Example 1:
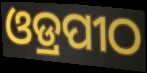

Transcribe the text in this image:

ଓଡ୍ରପୀଠ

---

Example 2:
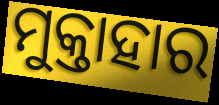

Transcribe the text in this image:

ମୁକ୍ତାହାର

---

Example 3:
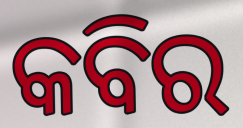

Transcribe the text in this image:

କବିର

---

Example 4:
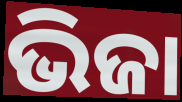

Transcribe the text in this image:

ଭିଜା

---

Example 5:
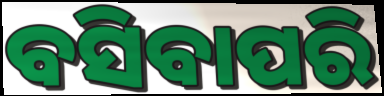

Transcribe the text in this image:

ବସିବାପରି